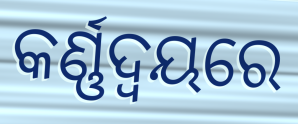
କର୍ଣ୍ଣଦ୍ୱୟରେ